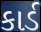
કાર્ડ